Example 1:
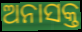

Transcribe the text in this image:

ଅନାସକ୍ତ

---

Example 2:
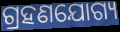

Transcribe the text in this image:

ଗ୍ରହଣଯୋଗ୍ୟ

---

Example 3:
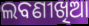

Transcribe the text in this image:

ଲବଣୀଖିଆ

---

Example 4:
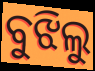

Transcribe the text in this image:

ବୁଝିଲୁ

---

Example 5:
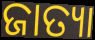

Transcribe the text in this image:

ଜାତ୍ୟା